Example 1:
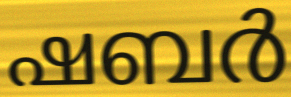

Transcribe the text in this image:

ഷബർ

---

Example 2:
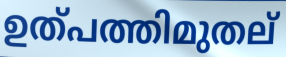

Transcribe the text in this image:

ഉത്പത്തിമുതല്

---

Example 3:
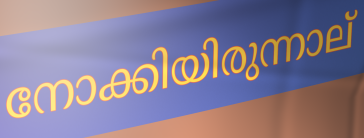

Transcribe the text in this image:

നോക്കിയിരുന്നാല്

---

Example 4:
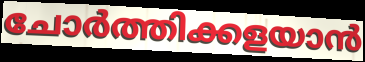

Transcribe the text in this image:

ചോർത്തിക്കളയാൻ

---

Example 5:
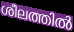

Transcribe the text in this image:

ശീലത്തിൽ